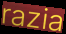
razia